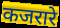
कजरारे